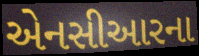
એનસીઆરના